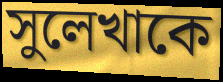
সুলেখাকে